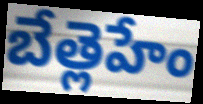
బేత్లెహేం